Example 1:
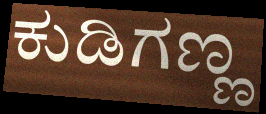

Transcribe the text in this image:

ಕುಡಿಗಣ್ಣ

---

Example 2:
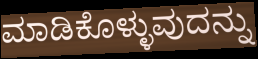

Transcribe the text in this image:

ಮಾಡಿಕೊಳ್ಳುವುದನ್ನು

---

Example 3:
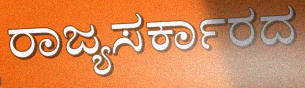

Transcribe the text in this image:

ರಾಜ್ಯಸರ್ಕಾರದ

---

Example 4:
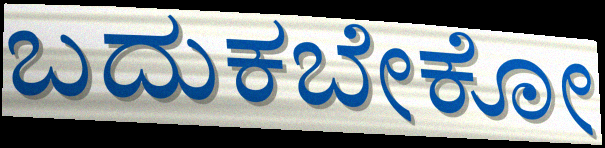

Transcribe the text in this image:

ಬದುಕಬೇಕೋ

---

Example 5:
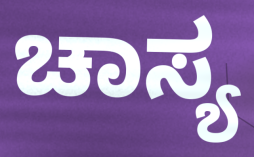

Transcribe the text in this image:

ಚಾಸ್ಯ